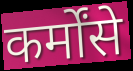
कर्मोंसे